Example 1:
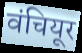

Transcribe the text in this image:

वंचियूर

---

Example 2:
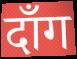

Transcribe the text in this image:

दाँग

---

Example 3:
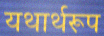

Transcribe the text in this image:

यथार्थरूप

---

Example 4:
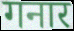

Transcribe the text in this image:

गनार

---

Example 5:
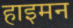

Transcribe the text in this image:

हाइमन